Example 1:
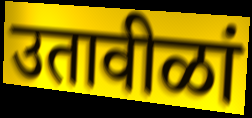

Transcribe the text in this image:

उतावीळां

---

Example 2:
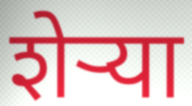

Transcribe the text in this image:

शेऱ्या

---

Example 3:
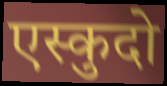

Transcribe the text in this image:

एस्कुदो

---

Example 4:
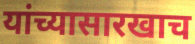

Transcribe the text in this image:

यांच्यासारखाच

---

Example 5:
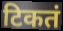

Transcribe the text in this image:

टिकतं